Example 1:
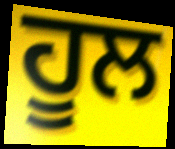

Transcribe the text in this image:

ਹੂਲ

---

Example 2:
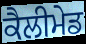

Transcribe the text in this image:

ਕੈਲੀਮੇਡ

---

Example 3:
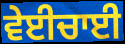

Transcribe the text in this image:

ਵੇਈਚਾਈ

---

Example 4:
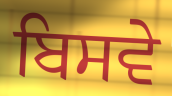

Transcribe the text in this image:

ਬਿਸਵੇ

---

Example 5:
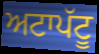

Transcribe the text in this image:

ਅਟਾਪੱਟੂ